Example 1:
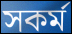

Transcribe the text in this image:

সকর্ম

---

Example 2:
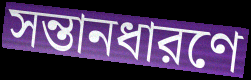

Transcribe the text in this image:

সন্তানধারণে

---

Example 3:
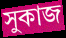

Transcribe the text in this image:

সুকাজ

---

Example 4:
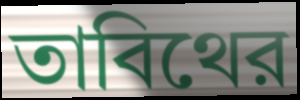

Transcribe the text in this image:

তাবিথের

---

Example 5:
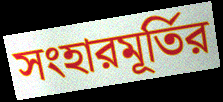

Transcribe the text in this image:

সংহারমূর্তির